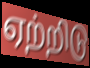
ஏற்றிடு